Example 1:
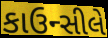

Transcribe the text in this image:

કાઉન્સીલે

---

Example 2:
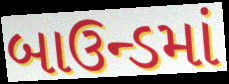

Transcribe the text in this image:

બાઉન્ડમાં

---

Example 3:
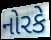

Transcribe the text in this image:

નોરકે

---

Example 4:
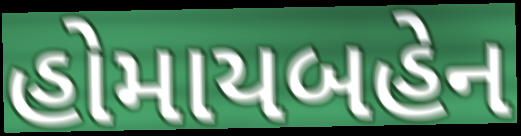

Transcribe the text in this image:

હોમાયબહેન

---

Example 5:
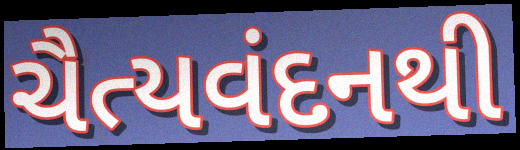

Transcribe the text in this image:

ચૈત્યવંદનથી